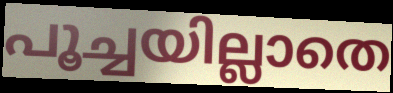
പൂച്ചയില്ലാതെ